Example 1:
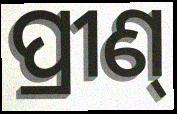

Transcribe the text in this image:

ପ୍ରୀଣ୍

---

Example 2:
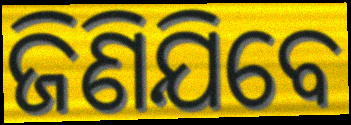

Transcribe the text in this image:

ଜିଣିଯିବେ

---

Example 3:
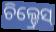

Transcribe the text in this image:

ଚିଲ୍ଡ୍ରେସ୍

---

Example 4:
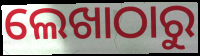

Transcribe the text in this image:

ଲେଖାଠାରୁ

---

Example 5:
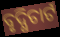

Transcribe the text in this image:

ବୃଦ୍ଧିଚାର୍ଟ